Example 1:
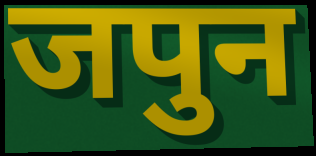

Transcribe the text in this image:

जपुन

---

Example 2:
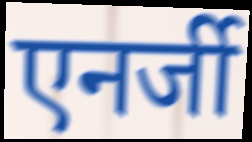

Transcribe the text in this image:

एनर्जी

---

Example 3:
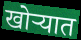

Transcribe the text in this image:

खोर्‍यात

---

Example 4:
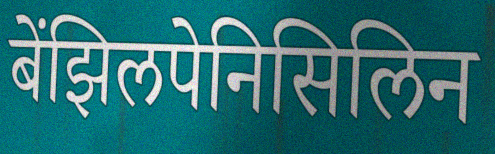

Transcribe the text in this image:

बेंझिलपेनिसिलिन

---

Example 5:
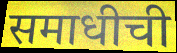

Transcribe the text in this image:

समाधीची